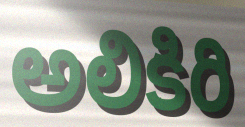
అలికిరి